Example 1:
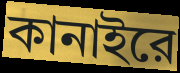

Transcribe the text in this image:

কানাইরে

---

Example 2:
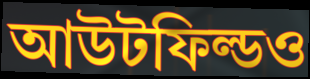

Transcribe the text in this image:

আউটফিল্ডও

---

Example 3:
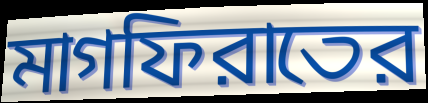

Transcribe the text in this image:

মাগফিরাতের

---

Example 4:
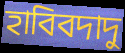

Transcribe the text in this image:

হাবিবদাদু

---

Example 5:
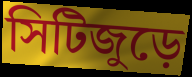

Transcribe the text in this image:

সিটিজুড়ে